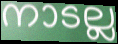
നാടല്ല